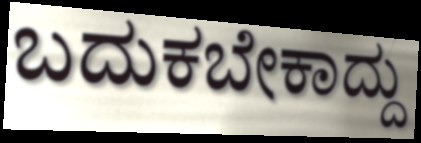
ಬದುಕಬೇಕಾದ್ದು